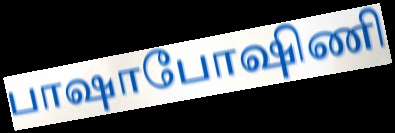
பாஷாபோஷிணி